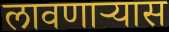
लावणाऱ्यास